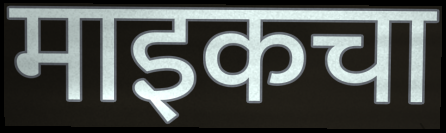
माइकचा